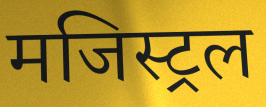
मजिस्ट्रल